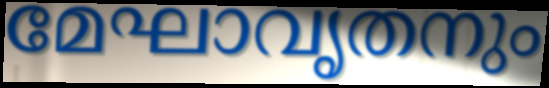
മേഘാവൃതനും